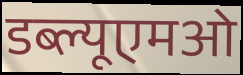
डब्ल्यूएमओ